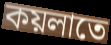
কয়লাতে